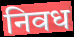
निवध